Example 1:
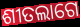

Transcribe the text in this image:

ଶୀତଲାଗେ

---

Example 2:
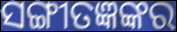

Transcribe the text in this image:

ସଙ୍ଗୀତଜ୍ଞଙ୍କର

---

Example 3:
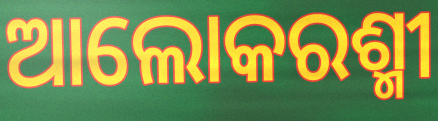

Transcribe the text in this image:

ଆଲୋକରଶ୍ମୀ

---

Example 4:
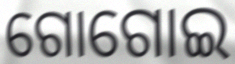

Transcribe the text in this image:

ଗୋଗୋଇ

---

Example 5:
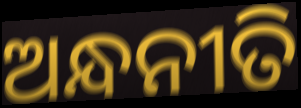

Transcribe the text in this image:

ଅନ୍ଧନୀତି